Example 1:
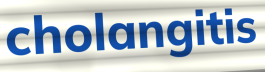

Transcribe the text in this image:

cholangitis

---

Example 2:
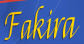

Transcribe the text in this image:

Fakira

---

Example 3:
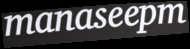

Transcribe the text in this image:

manaseepm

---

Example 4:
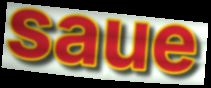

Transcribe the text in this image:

saue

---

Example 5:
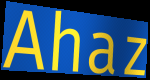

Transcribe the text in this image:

Ahaz